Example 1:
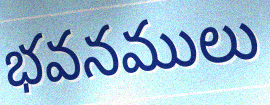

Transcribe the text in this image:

భవనములు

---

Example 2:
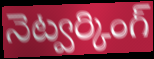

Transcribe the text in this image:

నెట్వర్కింగ్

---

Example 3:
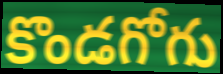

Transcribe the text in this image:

కొండగోగు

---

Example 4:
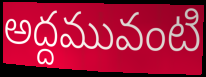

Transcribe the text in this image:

అద్దమువంటి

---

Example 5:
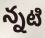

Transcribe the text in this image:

న్నటి